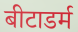
बीटाडर्म